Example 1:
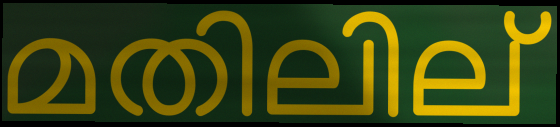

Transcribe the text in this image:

മതിലില്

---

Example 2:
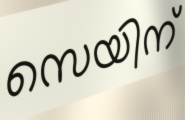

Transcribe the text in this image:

സെയിന്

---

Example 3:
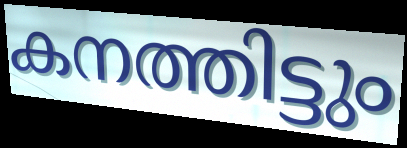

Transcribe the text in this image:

കനത്തിട്ടും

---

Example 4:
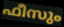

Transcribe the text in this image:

ഫീസും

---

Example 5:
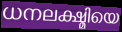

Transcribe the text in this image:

ധനലക്ഷ്മിയെ